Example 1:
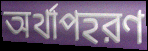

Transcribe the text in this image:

অর্থাপহরণ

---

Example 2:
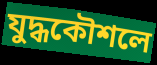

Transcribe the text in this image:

যুদ্ধকৌশলে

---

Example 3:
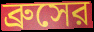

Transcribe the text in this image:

ব্রুসের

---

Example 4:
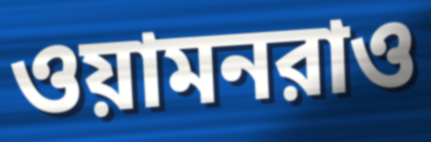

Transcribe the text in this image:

ওয়ামনরাও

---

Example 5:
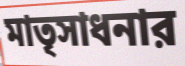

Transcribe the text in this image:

মাতৃসাধনার